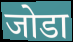
जोडा